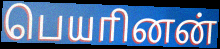
பெயரினன்